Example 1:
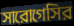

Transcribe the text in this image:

সারোগেসির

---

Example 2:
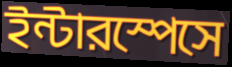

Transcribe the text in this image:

ইন্টারস্পেসে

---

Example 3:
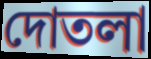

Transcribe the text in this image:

দোতলা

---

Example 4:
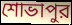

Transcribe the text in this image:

শোভাপুর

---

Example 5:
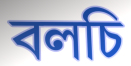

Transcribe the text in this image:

বলচি